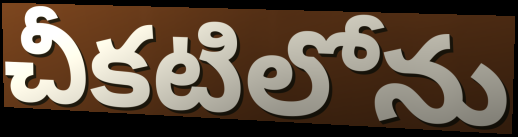
చీకటిలోను